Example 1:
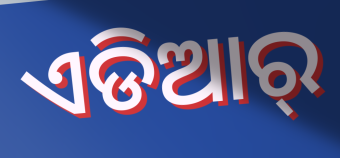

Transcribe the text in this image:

ଏଡିଆର୍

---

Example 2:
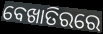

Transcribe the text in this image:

ବେଖାତିରରେ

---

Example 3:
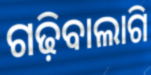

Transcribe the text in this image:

ଗଢ଼ିବାଲାଗି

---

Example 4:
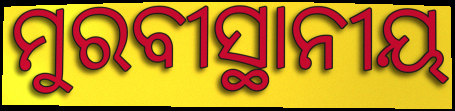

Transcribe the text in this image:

ମୁରବୀସ୍ଥାନୀୟ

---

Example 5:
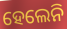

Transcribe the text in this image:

ହେଲେନି